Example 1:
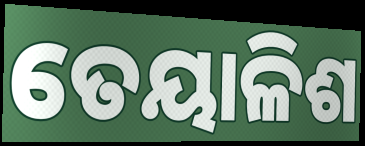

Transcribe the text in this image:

ତେୟାଳିଶ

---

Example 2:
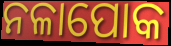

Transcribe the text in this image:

ନଳାପୋକ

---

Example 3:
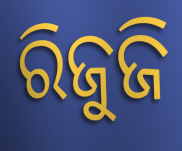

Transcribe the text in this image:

ରିଜୁଜି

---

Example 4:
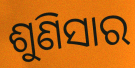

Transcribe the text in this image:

ଶୁଣିସାର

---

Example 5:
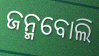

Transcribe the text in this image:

ଜନ୍ମବୋଲି